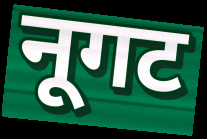
नूगट